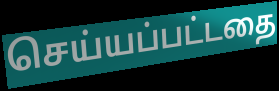
செய்யப்பட்டதை